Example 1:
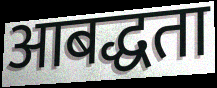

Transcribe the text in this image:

आबद्धता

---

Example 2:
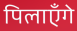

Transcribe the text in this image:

पिलाएँगे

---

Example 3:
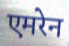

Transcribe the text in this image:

एमरेन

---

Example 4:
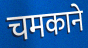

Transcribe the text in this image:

चमकाने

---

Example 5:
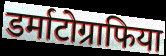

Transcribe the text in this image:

डर्माटोग्राफिया